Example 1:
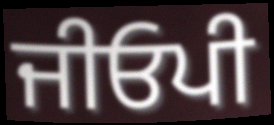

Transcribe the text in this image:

ਜੀਓਪੀ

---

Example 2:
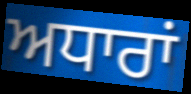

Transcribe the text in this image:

ਅਧਾਰਾਂ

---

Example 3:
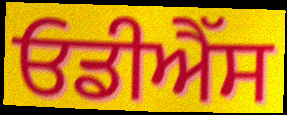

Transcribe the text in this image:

ਓਡੀਐੱਸ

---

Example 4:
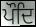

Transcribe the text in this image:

ਪੌਦਿ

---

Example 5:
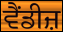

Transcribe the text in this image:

ਵੈਂਡੀਜ਼